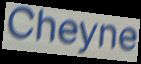
Cheyne